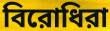
বিরোধিরা